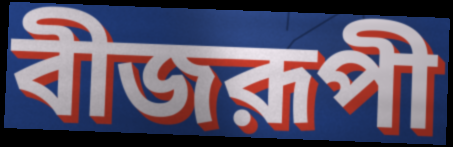
বীজরূপী